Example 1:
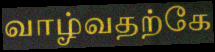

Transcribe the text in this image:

வாழ்வதற்கே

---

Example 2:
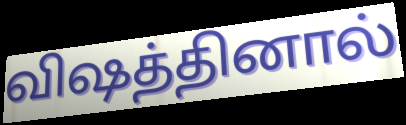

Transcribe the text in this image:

விஷத்தினால்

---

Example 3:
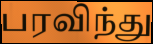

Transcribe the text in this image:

பரவிந்து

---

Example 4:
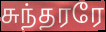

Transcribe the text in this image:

சுந்தரரே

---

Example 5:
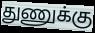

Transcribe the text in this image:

துணுக்கு